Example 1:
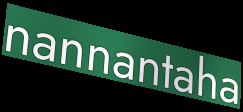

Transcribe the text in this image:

nannantaha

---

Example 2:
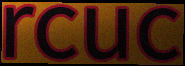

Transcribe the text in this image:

rcuc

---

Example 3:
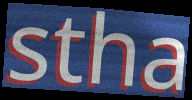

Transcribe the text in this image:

stha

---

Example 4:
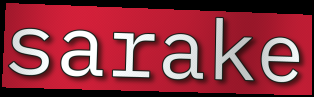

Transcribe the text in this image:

sarake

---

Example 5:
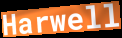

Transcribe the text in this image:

Harwell